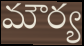
మౌర్య